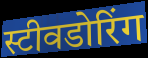
स्टीवडोरिंग